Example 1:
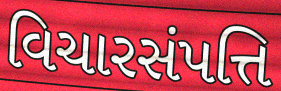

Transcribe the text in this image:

વિચારસંપત્તિ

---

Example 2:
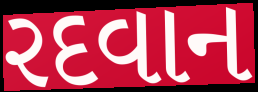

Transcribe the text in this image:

રદવાન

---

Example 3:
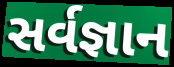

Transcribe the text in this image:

સર્વજ્ઞાન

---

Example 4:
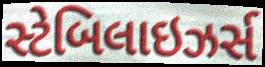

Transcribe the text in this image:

સ્ટેબિલાઇઝર્સ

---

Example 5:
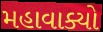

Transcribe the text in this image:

મહાવાક્યો